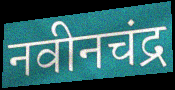
नवीनचंद्र